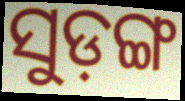
ସୁଡ଼ଙ୍ଗ